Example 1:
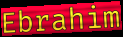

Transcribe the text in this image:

Ebrahim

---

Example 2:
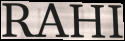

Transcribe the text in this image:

RAHI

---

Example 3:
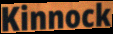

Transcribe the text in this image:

Kinnock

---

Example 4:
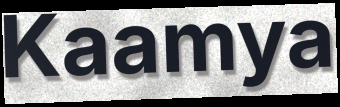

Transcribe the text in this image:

Kaamya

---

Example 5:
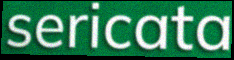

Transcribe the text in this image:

sericata